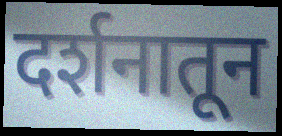
दर्शनातून